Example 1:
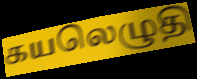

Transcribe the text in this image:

கயலெழுதி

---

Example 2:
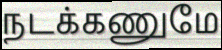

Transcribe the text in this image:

நடக்கணுமே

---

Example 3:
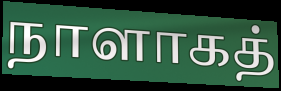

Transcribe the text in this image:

நாளாகத்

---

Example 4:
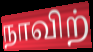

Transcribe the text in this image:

நாவிற்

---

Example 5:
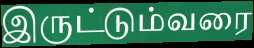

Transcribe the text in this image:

இருட்டும்வரை